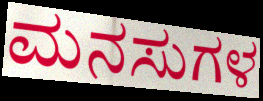
ಮನಸುಗಳ